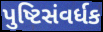
પુષ્ટિસંવર્ધક